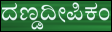
ದಣ್ಡದೀಪಿಕಂ